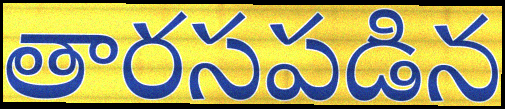
తారసపడిన